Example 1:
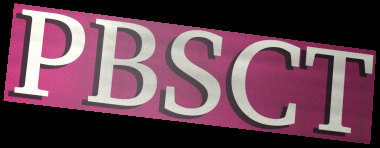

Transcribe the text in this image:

PBSCT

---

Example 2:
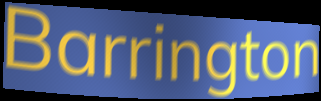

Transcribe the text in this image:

Barrington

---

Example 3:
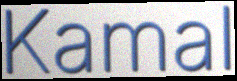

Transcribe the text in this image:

Kamal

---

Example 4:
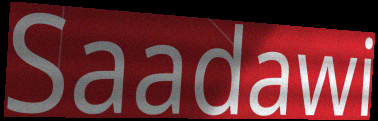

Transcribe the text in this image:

Saadawi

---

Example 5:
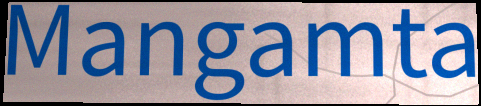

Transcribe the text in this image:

Mangamta